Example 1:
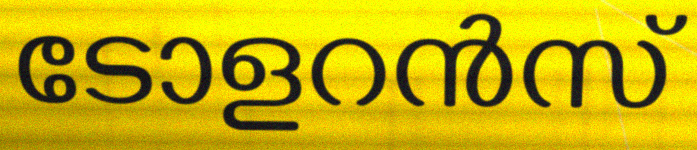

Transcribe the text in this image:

ടോളറൻസ്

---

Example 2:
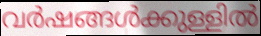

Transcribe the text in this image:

വർഷങ്ങൾക്കുള്ളിൽ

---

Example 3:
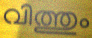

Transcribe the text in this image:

വിത്തും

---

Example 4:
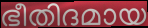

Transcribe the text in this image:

ഭീതിദമായ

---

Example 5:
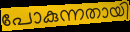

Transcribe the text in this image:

പോകുന്നതായി